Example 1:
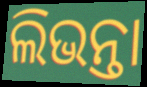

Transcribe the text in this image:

ଲିଭନ୍ତା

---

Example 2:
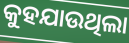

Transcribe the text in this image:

କୁହଯାଉଥିଲା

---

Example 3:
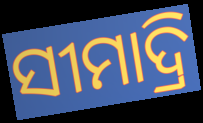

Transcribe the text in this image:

ସୀମାଦ୍ରି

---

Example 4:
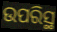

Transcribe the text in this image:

ଉପରିସ୍ଥ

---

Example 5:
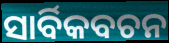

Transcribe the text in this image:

ସାର୍ବିକବଚନ